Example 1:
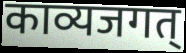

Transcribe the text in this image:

काव्यजगत्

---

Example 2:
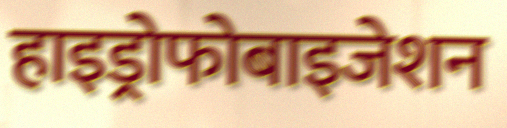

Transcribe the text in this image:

हाइड्रोफोबाइजेशन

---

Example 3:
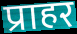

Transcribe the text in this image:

प्राहर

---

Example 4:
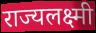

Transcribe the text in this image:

राज्यलक्ष्मी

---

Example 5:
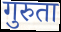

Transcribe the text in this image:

गुरुता